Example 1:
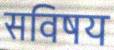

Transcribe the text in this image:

सविषय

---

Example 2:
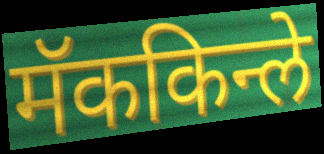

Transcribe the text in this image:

मॅककिन्ले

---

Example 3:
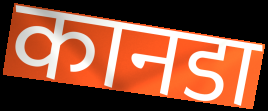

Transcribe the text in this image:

कानडा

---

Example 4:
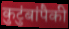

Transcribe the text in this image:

कुटुंबांपैकी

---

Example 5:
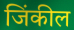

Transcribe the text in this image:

जिंकील